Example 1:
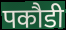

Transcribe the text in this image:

पकौडी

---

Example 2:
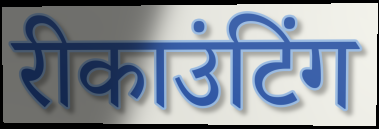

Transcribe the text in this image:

रीकाउंटिंग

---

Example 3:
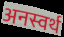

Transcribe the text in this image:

अनस्वर्थ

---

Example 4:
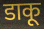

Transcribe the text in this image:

डाकू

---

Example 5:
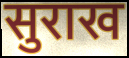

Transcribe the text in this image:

सुराख